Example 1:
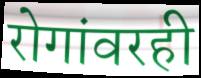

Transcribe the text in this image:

रोगांवरही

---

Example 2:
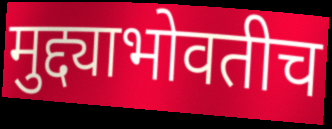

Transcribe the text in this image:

मुद्द्याभोवतीच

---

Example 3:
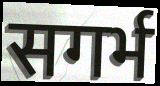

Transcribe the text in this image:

सगर्भ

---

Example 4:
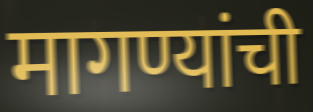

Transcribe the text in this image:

मागण्यांची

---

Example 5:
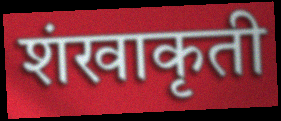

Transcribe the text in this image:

शंखाकृती